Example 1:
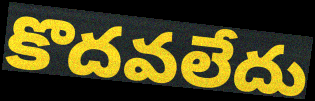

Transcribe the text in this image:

కొదవలేదు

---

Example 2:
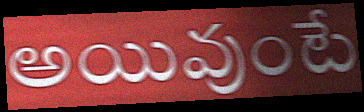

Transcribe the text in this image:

అయివుంటే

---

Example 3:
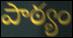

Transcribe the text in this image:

పాఠ్యం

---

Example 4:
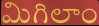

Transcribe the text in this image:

మిగిలాం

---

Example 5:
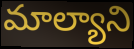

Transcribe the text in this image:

మాల్యాని